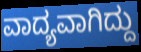
ವಾದ್ಯವಾಗಿದ್ದು